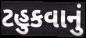
ટહુકવાનું